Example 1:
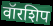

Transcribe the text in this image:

वॉरशिप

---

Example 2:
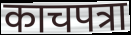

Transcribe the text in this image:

काचपत्रा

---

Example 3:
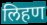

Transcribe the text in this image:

लिहण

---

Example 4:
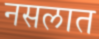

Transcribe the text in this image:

नसलात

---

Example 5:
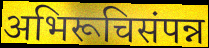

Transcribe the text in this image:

अभिरूचिसंपन्न